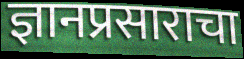
ज्ञानप्रसाराचा